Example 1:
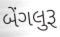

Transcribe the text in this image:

બેંગલુરૂ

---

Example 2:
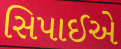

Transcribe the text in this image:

સિપાઈએ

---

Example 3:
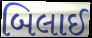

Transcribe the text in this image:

બિલાઈ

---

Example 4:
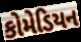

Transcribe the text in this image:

કોમેડિયન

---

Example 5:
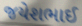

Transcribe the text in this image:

જયેશભાઈ